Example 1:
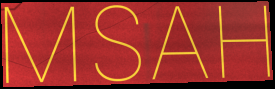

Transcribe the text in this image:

MSAH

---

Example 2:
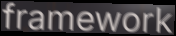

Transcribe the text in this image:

framework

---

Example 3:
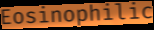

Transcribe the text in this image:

Eosinophilic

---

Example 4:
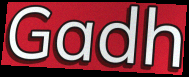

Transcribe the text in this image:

Gadh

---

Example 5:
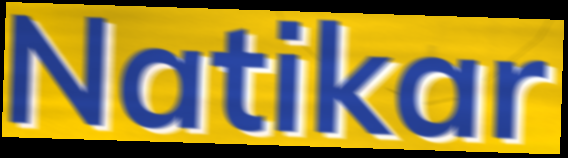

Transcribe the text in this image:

Natikar